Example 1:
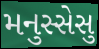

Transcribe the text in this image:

મનુસ્સેસુ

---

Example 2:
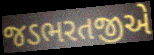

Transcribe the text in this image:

જડભરતજીએ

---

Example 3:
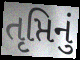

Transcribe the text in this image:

તૃપ્તિનું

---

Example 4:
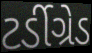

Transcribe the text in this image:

ટર્ડીગ્રેડ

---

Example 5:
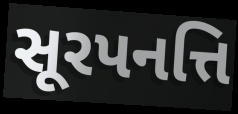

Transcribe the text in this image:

સૂરપનત્તિ